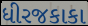
ધીરજકાકા